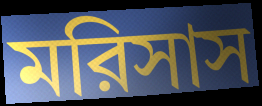
মরিসাস